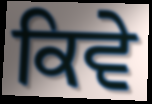
ਕਿਵੇ